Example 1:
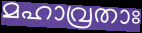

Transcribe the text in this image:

മഹാവ്രതാഃ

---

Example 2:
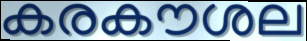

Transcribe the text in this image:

കരകൗശല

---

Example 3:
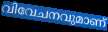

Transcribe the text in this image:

വിവേചനവുമാണ്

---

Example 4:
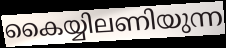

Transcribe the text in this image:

കൈയ്യിലണിയുന്ന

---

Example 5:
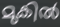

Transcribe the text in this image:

മുകിൽ